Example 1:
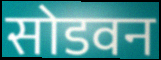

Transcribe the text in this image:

सोडवन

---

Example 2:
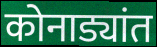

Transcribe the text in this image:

कोनाड्यांत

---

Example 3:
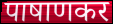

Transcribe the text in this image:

पाषाणकर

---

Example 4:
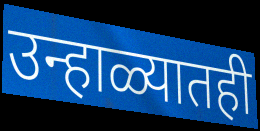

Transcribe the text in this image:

उन्हाळ्यातही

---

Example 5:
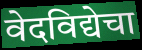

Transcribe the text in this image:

वेदविद्येचा